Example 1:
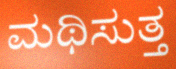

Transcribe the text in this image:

ಮಥಿಸುತ್ತ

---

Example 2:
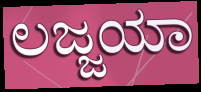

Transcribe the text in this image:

ಲಜ್ಜಯಾ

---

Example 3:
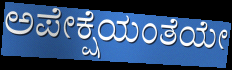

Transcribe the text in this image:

ಅಪೇಕ್ಷೆಯಂತೆಯೇ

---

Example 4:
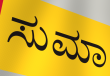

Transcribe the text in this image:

ಸುಮಾ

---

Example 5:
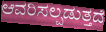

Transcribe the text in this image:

ಆವರಿಸಲ್ಪಡುತ್ತದೆ